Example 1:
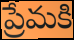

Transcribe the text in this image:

ప్రేమకి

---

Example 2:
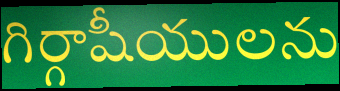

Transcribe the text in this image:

గిర్గాషీయులను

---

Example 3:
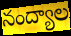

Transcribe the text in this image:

నంద్యాల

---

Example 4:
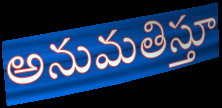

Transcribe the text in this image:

అనుమతిస్తూ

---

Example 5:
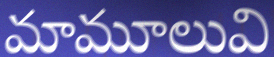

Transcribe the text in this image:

మామూలువి